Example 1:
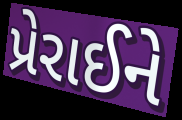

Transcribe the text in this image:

પ્રેરાઈને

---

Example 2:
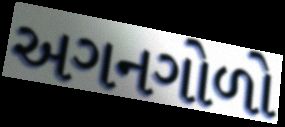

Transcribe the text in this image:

અગનગોળો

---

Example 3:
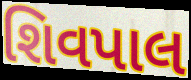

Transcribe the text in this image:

શિવપાલ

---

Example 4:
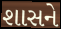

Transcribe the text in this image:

શાસને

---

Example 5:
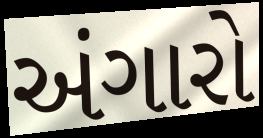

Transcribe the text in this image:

અંગારો